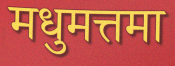
मधुमत्तमा